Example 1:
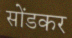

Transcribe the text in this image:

सोंडकर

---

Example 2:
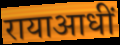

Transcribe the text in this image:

रायाआधीं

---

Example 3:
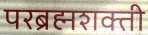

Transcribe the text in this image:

परब्रह्मशक्ती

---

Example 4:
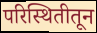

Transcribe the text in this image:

परिस्थितीतून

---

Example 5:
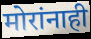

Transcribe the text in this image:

मोरांनाही